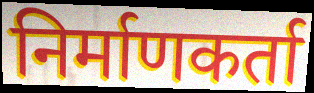
निर्माणकर्ता